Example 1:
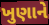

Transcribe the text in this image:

ખુણાને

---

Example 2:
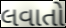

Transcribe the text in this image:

લવાતો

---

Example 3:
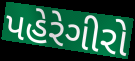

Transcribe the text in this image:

પહેરેગીરો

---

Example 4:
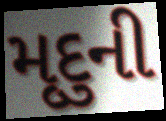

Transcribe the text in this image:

મૃદુની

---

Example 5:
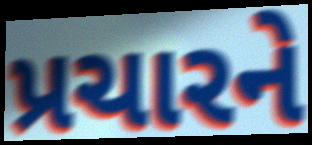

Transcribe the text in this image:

પ્રચારને